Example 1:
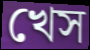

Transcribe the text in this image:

খেস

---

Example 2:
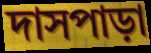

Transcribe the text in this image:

দাসপাড়া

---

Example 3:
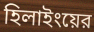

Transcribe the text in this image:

হিলাইংয়ের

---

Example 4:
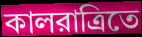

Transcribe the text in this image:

কালরাত্রিতে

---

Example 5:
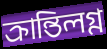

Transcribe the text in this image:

ক্রান্তিলগ্ন